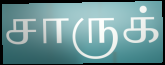
சாருக்